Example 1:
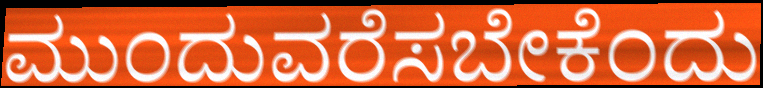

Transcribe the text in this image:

ಮುಂದುವರೆಸಬೇಕೆಂದು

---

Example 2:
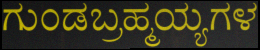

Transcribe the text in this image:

ಗುಂಡಬ್ರಹ್ಮಯ್ಯಗಳ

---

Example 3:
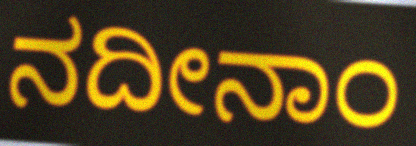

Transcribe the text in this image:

ನದೀನಾಂ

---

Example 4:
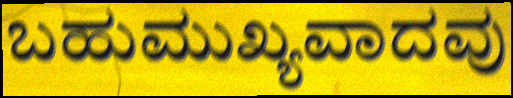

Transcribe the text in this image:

ಬಹುಮುಖ್ಯವಾದವು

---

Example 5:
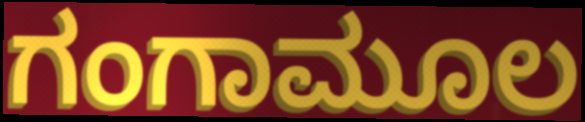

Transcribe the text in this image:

ಗಂಗಾಮೂಲ